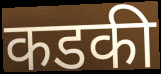
कडकी